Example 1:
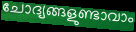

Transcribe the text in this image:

ചോദ്യങ്ങളുണ്ടാവാം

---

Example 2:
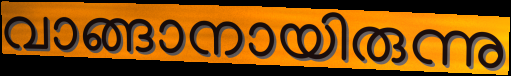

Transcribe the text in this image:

വാങ്ങാനായിരുന്നു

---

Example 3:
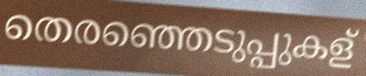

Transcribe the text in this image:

തെരഞ്ഞെടുപ്പുകള്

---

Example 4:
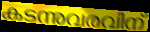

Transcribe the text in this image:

കടന്നുവരവിന്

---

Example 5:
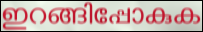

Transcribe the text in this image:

ഇറങ്ങിപ്പോകുക